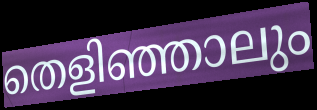
തെളിഞ്ഞാലും